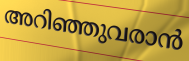
അറിഞ്ഞുവരാൻ